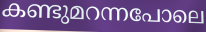
കണ്ടുമറന്നപോലെ